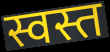
स्वस्त